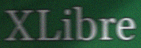
XLibre